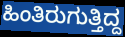
ಹಿಂತಿರುಗುತ್ತಿದ್ದ